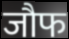
जौफ